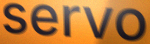
servo